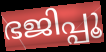
ഭജിപ്പൂ